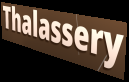
Thalassery